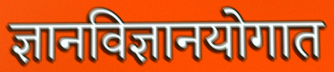
ज्ञानविज्ञानयोगात